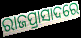
ରାଜପ୍ରାସାଦରେ